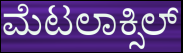
ಮೆಟಲಾಕ್ಸಿಲ್